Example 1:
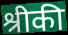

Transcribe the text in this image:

श्रीकी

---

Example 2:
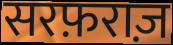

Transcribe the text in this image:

सरफ़राज़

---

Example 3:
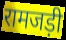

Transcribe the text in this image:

रामजड़ी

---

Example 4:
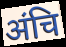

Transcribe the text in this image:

अंचि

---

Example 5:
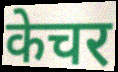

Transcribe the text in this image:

केचर